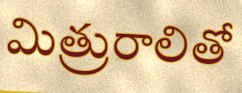
మిత్రురాలితో